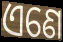
ଏଣେ